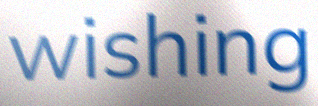
wishing